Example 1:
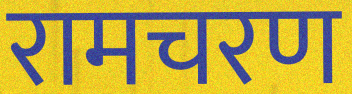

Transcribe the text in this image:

रामचरण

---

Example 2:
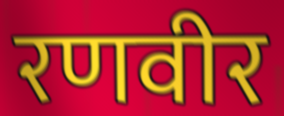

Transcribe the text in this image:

रणवीर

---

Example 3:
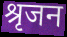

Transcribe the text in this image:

श्रृजन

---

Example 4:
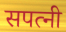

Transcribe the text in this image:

सपत्नी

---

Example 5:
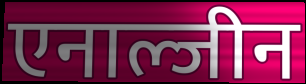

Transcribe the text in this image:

एनाल्जीन